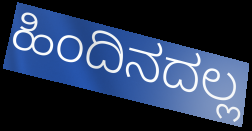
ಹಿಂದಿನದಲ್ಲ